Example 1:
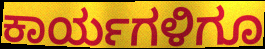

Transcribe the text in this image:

ಕಾರ್ಯಗಳಿಗೂ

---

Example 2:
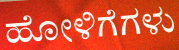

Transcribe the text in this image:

ಹೋಳಿಗೆಗಳು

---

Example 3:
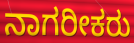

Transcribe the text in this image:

ನಾಗರೀಕರು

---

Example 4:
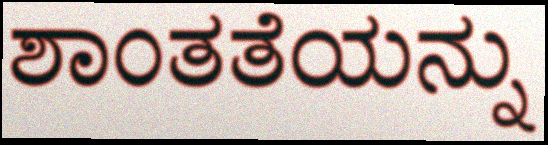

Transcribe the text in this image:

ಶಾಂತತೆಯನ್ನು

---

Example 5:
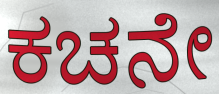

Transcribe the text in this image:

ಕಚನೇ